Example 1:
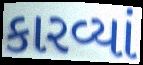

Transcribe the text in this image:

કારવ્યાં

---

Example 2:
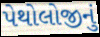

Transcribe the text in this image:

પેથોલોજીનું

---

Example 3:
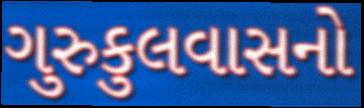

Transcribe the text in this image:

ગુરુકુલવાસનો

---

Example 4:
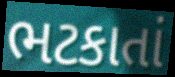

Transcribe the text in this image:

ભટકાતાં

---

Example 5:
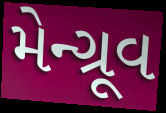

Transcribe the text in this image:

મેન્ગ્રૂવ